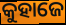
କୁହାଜେ